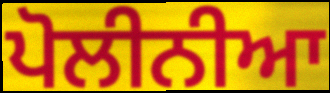
ਪੋਲੀਨੀਆ